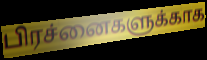
பிரச்னைகளுக்காக